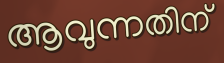
ആവുന്നതിന്